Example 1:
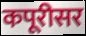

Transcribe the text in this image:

कपूरीसर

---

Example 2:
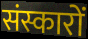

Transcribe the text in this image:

संस्कारों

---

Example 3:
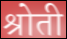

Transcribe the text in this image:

श्रोती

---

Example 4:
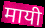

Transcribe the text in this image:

मायी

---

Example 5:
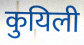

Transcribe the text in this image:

कुयिली